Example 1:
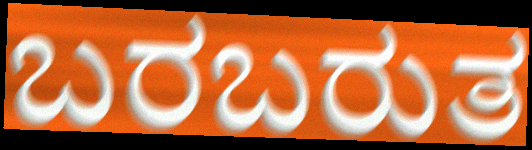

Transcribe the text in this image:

ಬರಬರುತ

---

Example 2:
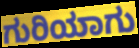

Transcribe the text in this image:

ಗುರಿಯಾಗು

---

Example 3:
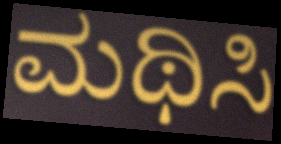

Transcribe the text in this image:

ಮಥಿಸಿ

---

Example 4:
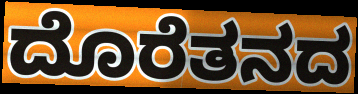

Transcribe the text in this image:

ದೊರೆತನದ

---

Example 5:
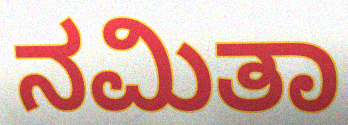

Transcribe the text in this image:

ನಮಿತಾ